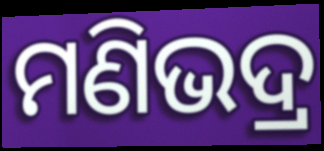
ମଣିଭଦ୍ର